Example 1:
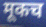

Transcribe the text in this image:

मूकच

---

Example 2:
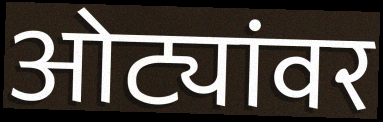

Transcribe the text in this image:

ओट्यांवर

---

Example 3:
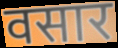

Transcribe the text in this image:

वसार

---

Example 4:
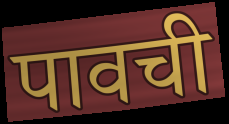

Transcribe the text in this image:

पावची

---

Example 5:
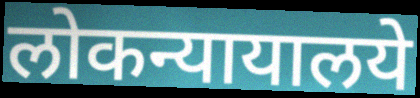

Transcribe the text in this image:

लोकन्यायालये